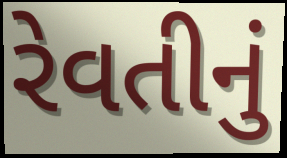
રેવતીનું